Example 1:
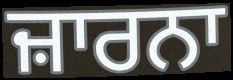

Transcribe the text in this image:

ਜ਼ਾਰਨਾ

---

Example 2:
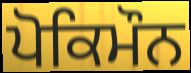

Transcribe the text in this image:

ਪੋਕਿਮੌਨ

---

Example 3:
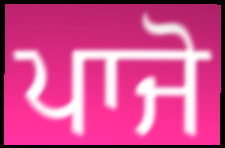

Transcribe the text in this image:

ਪਾਜੋ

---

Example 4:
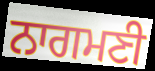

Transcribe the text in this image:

ਨਾਗਮਣੀ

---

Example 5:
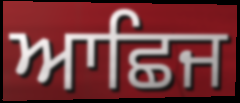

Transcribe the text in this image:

ਆਛਿਜ